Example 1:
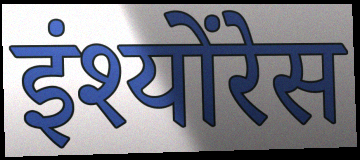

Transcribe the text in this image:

इंश्योंरेस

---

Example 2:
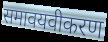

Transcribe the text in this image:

समावयवीकरण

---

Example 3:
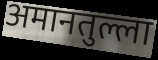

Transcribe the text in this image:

अमानतुल्ला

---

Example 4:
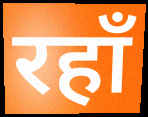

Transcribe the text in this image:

रहाँ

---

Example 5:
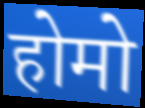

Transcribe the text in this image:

होमो